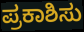
ಪ್ರಕಾಶಿಸು